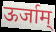
ऊर्जाम्